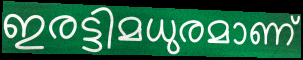
ഇരട്ടിമധുരമാണ്